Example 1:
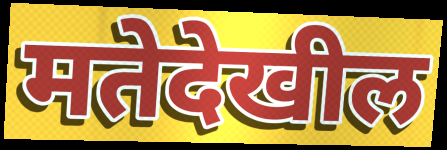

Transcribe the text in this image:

मतेदेखील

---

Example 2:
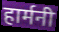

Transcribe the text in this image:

हार्मनी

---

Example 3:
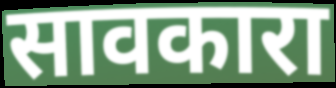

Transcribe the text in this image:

सावकारा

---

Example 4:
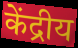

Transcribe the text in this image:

केंद्रीय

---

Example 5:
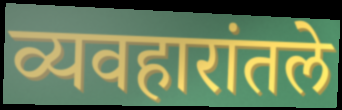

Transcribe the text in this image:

व्यवहारांतले